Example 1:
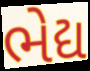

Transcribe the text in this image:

ભેદ્ય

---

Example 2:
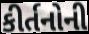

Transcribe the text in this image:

કીર્તનોની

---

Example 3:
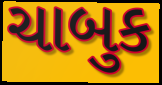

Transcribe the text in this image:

ચાબુક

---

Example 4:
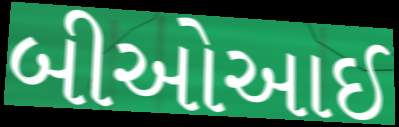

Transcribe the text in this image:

બીઓઆઈ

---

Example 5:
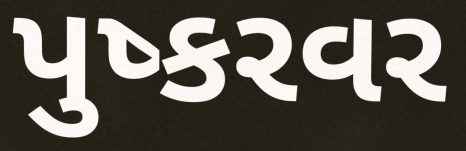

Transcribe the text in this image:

પુષ્કરવર